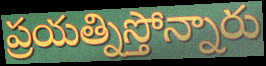
ప్రయత్నిస్తోన్నారు